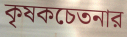
কৃষকচেতনার